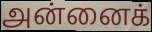
அன்னைக்